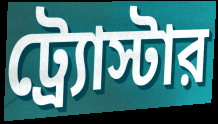
ট্র্যোস্টার